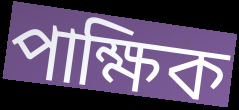
পাক্ষিক